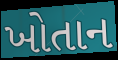
ખોતાન